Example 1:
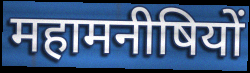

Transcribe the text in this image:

महामनीषियों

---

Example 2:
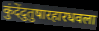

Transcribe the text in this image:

कुंदेंदुतुषारहारधवला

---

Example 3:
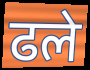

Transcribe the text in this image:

ढले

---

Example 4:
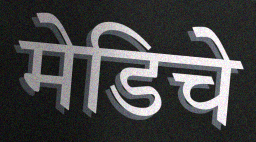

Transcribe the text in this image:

मेडिचे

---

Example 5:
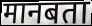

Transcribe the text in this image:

मानबता